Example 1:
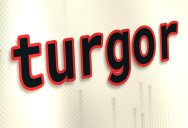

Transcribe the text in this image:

turgor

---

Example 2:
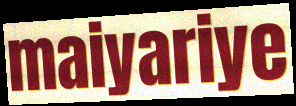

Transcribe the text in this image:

maiyariye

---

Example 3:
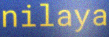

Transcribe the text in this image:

nilaya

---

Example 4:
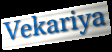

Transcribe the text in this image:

Vekariya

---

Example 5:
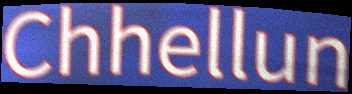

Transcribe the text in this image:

Chhellun